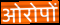
ओरोपों